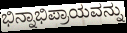
ಭಿನ್ನಾಭಿಪ್ರಾಯವನ್ನು